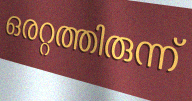
ഒരറ്റത്തിരുന്ന്